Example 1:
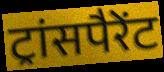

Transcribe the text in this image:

ट्रांसपैरेंट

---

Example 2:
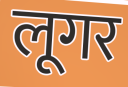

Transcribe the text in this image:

लूगर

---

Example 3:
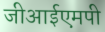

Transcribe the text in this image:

जीआईएमपी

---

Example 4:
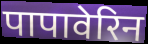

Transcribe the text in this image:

पापावेरिन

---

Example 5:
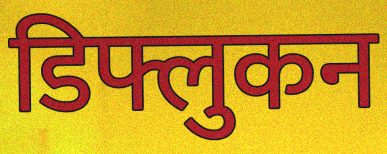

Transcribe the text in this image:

डिफ्लुकन